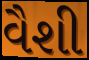
વૈશી